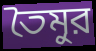
তৈমুর